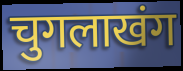
चुगलाखंग